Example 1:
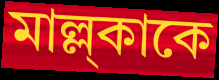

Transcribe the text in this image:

মাল্ল্কাকে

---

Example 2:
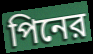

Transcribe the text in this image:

পিনের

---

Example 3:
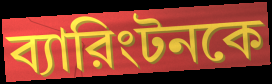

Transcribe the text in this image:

ব্যারিংটনকে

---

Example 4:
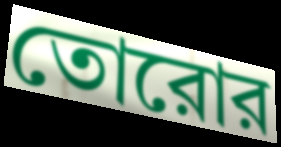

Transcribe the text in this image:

তোরোর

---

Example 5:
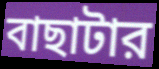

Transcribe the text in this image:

বাছাটার